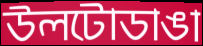
উলটোডাঙা